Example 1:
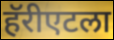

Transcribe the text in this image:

हॅरीएटला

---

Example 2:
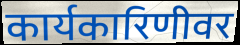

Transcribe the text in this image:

कार्यकारिणीवर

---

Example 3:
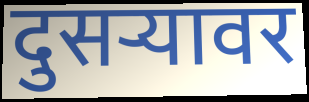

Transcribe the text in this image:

दुसऱ्यावर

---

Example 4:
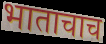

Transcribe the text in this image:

भाताचाच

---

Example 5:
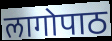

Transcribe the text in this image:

लागोपाठ